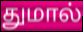
துமால்